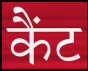
कैंट